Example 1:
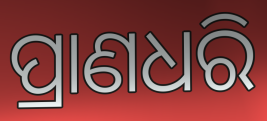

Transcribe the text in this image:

ପ୍ରାଣଧରି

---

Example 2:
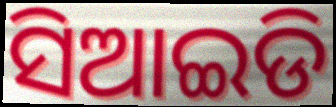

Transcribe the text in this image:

ସିଆଇଡି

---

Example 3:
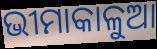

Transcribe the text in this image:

ଭୀମାକାଳୁଆ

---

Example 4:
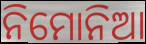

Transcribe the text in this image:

ନିମୋନିଆ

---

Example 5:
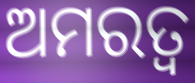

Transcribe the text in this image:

ଅମରତ୍ବ